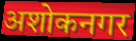
अशोकनगर